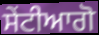
ਸੇਂਟੀਆਗੋ